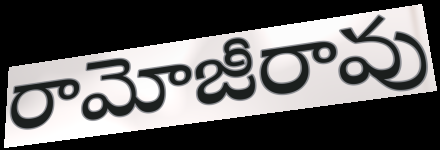
రామోజీరావు